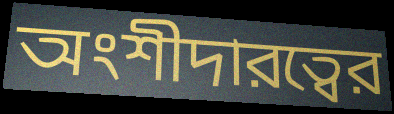
অংশীদারত্বের